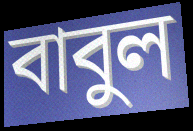
বাবুল